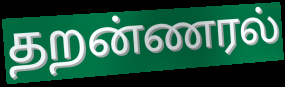
தறன்ணரல்